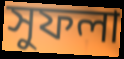
সুফলা